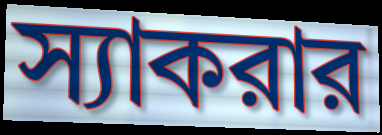
স্যাকরার